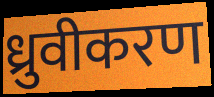
ध्रुवीकरण